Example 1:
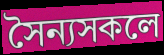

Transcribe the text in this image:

সৈন্যসকলে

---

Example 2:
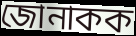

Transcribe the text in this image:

জোনাকক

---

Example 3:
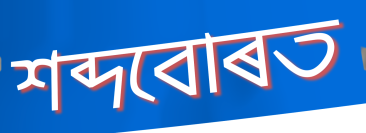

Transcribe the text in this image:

শব্দবোৰত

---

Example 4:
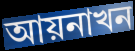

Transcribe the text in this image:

আয়নাখন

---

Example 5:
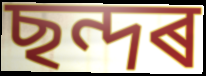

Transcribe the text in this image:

ছন্দৰ